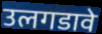
उलगडावे